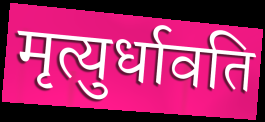
मृत्युर्धावति